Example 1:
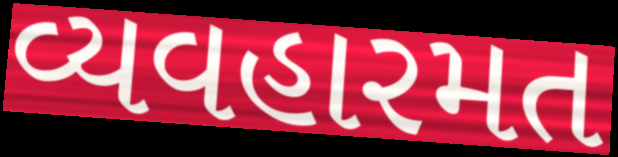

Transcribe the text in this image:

વ્યવહારમત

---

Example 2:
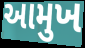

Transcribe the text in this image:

આમુખ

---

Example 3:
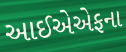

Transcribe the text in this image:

આઈએએફના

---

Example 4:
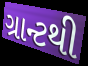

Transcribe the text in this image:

ગ્રાન્ટથી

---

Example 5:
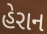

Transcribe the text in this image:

હેરાન